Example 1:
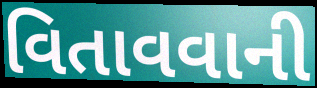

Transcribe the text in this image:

વિતાવવાની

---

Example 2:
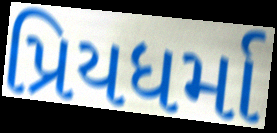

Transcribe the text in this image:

પ્રિયધર્મા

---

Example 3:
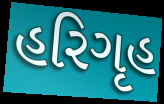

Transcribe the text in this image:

હરિગૃહ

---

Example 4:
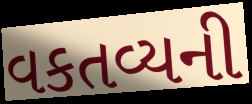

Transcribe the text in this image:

વકતવ્યની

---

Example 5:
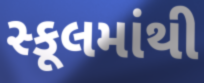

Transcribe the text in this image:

સ્કૂલમાંથી